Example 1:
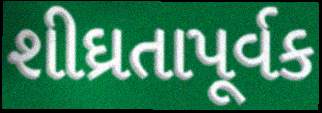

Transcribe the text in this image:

શીઘ્રતાપૂર્વક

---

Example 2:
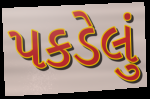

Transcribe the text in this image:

પકડેલું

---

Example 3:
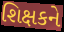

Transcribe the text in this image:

શિક્ષકને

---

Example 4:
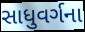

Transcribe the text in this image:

સાધુવર્ગના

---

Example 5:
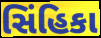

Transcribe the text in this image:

સિંહિકા